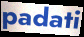
padati